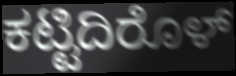
ಕಟ್ಟಿದಿರೊಳ್